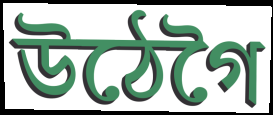
উঠেগৈ